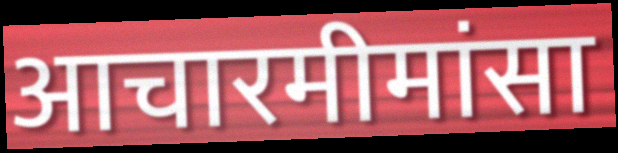
आचारमीमांसा